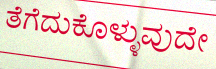
ತೆಗೆದುಕೊಳ್ಳುವುದೇ